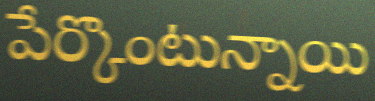
పేర్కొంటున్నాయి